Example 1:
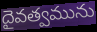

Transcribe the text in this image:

దైవత్వమును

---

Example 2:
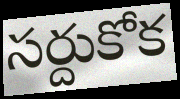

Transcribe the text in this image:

సర్దుకోక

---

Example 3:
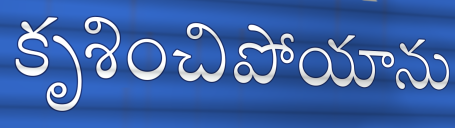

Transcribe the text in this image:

కృశించిపోయాను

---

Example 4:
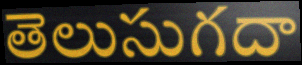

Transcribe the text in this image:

తెలుసుగదా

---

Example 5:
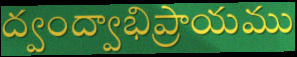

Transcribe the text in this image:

ద్వంద్వాభిప్రాయము